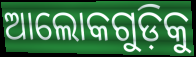
ଆଲୋକଗୁଡ଼ିକୁ